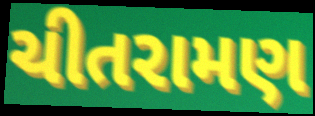
ચીતરામણ